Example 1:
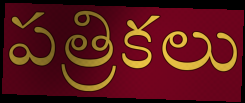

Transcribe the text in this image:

పత్రికలు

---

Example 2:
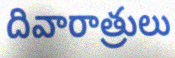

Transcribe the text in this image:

దివారాత్రులు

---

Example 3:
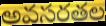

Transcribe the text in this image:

అవసరతల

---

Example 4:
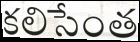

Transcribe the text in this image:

కలిసేంత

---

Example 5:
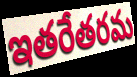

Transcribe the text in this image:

ఇతరేతరమ